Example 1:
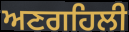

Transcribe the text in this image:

ਅਣਗਹਿਲੀ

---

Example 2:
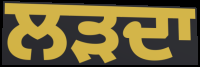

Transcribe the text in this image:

ਲੜਦਾ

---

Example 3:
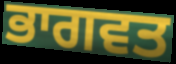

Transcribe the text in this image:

ਭਾਗਵਤ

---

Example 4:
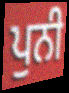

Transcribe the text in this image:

ਪੁਨੀ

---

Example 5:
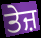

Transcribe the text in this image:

ਤੇਜ਼